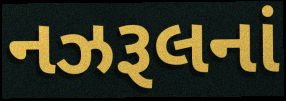
નઝરૂલનાં